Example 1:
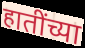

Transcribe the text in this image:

हातींच्या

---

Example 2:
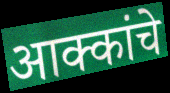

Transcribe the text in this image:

आक्कांचे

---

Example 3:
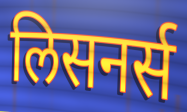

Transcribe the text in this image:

लिसनर्स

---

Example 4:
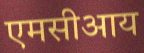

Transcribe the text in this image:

एमसीआय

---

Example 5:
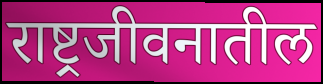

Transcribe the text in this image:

राष्ट्रजीवनातील